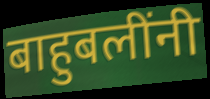
बाहुबलींनी